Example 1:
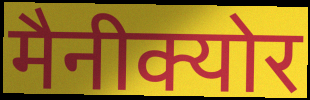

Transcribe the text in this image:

मैनीक्योर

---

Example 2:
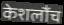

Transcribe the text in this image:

केशलौंच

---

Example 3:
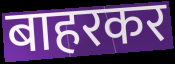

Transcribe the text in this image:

बाहरकर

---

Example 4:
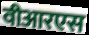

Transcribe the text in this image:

वीआरएस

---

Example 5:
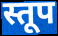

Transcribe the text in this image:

स्तूप